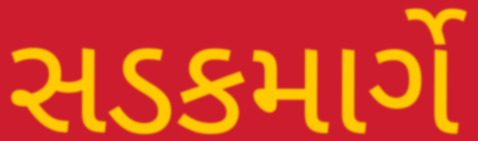
સડકમાર્ગે